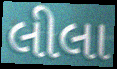
લીલા